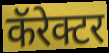
कॅरेक्टर